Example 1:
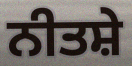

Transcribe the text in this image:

ਨੀਤਸ਼ੇ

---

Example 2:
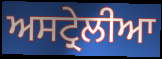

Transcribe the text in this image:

ਅਸਟ੍ਰੇਲੀਆ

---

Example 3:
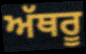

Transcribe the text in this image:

ਅੱਥਰੂ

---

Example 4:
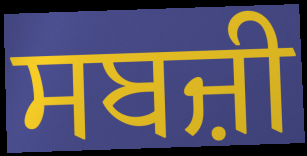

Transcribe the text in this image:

ਸਬਜ਼ੀ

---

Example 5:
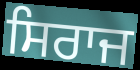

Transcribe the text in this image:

ਸਿਰਾਜ